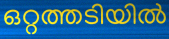
ഒറ്റത്തടിയിൽ